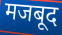
मजबूद